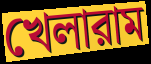
খেলারাম